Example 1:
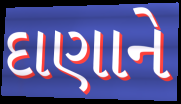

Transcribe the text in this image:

દાણાને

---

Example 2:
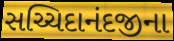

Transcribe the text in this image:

સચ્ચિદાનંદજીના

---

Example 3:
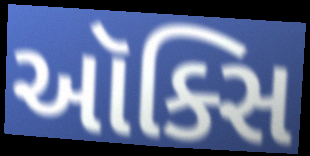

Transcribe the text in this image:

ઑક્સિ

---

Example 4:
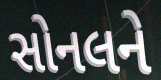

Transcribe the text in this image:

સોનલને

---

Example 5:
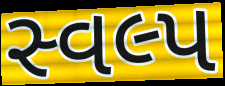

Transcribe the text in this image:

સ્વલ્પ